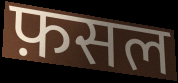
फ़सल